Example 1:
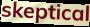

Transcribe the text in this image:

skeptical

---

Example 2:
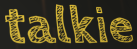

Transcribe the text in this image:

talkie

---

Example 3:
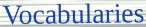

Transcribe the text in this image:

Vocabularies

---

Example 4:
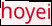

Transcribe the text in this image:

hoyei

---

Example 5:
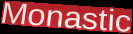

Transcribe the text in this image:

Monastic